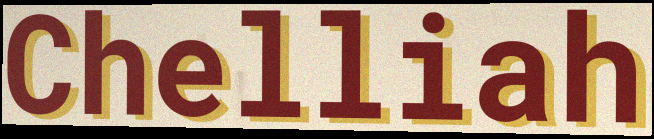
Chelliah